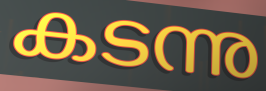
കടന്നു